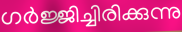
ഗർജ്ജിച്ചിരിക്കുന്നു